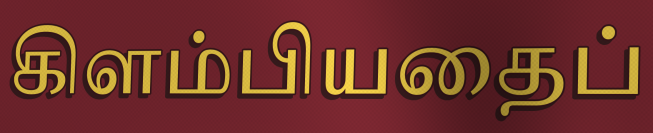
கிளம்பியதைப்